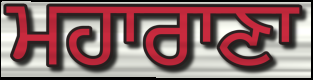
ਮਹਾਰਾਣਾ